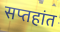
सप्तहांत